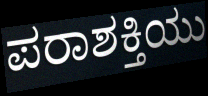
ಪರಾಶಕ್ತಿಯು